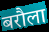
बरौला